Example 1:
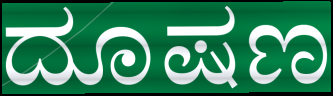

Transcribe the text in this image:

ದೂಷಣ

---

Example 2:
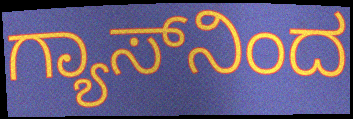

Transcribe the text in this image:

ಗ್ಯಾಸ್‌ನಿಂದ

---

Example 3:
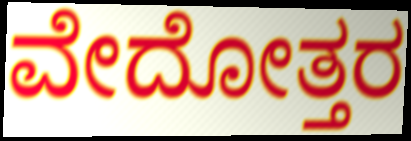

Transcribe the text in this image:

ವೇದೋತ್ತರ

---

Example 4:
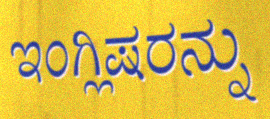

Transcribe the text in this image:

ಇಂಗ್ಲಿಷರನ್ನು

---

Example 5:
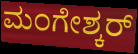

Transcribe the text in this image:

ಮಂಗೇಶ್ಕರ್